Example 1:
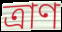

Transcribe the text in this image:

ত্ৰাণ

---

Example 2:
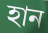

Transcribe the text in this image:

হান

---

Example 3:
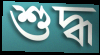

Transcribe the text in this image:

শুদ্ধ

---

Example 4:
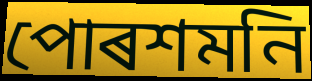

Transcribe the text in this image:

পোৰশমনি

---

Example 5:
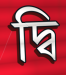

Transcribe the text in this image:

দ্বি